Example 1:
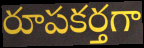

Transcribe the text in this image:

రూపకర్తగా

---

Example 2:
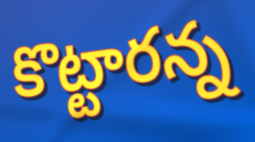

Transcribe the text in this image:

కొట్టారన్న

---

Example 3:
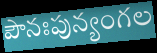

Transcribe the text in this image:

పౌనఃపున్యంగల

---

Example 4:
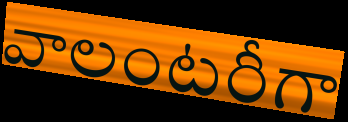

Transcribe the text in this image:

వాలంటరీగా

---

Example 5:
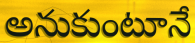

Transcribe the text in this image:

అనుకుంటూనే